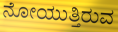
ನೋಯುತ್ತಿರುವ